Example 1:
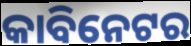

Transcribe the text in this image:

କାବିନେଟର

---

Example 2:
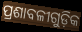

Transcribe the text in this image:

ପ୍ରଶାବଳୀଗୁଡ଼ିକ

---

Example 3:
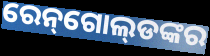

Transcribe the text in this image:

ରେନ୍‌ଗୋଲ୍‌ଡଙ୍କର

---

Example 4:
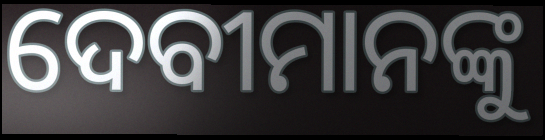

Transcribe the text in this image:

ଦେବୀମାନଙ୍କୁ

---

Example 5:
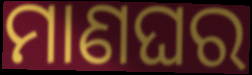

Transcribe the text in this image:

ମାଣଘର